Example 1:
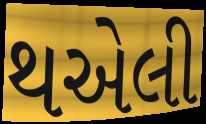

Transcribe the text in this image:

થએલી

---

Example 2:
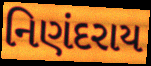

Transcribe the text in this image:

નિણંદરાય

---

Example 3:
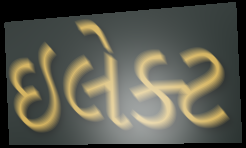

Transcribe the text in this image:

ઇલેક્ટ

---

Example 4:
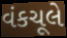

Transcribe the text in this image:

વંકચૂલે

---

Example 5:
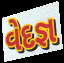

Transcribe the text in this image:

વેદજ્ઞ